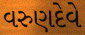
વરુણદેવે